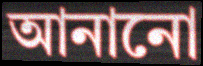
আনানো